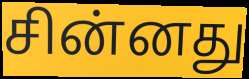
சின்னது